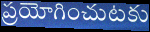
ప్రయోగించుటకు